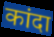
कांदा